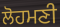
ਲੋਹਮਣੀ